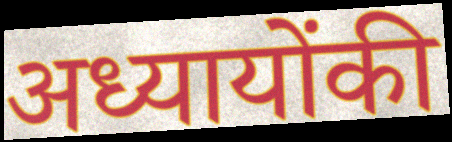
अध्यायोंकी